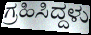
ಗ್ರಹಿಸಿದ್ದಳು